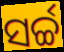
ସର୍ଚ୍ଚ